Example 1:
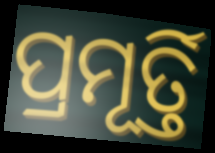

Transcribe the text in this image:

ପ୍ରମୂର୍ତ୍ତି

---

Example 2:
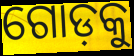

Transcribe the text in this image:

ଗୋଡ଼କୁ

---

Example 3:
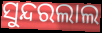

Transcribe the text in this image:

ସୁନ୍ଦରଲାଲ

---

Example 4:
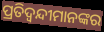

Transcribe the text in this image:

ପ୍ରତିଦ୍ୱନ୍ଦୀମାନଙ୍କର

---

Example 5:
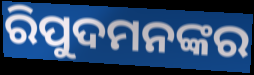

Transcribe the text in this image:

ରିପୁଦମନଙ୍କର